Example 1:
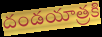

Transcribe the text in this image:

దండయాత్రకి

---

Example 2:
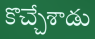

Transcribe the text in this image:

కొచ్చేశాడు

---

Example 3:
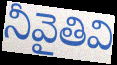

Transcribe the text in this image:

నీవైతివి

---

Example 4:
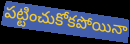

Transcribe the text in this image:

పట్టించుకోకపోయినా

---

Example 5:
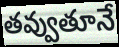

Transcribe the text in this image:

తవ్వుతూనే